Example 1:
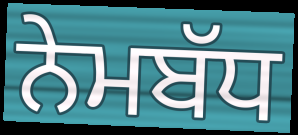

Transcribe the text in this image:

ਨੇਮਬੱਧ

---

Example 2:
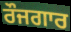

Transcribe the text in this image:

ਰੌਜਗਾਰ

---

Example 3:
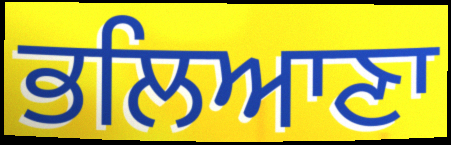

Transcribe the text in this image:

ਭਲਿਆਣਾ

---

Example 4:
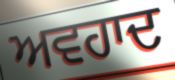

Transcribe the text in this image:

ਅਵਹਾਦ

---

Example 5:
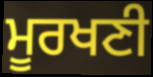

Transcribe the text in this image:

ਮੂਰਖਣੀ